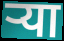
ऱ्या